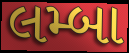
લમ્બા